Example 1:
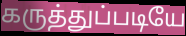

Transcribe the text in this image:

கருத்துப்படியே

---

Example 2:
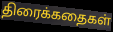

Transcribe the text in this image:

திரைக்கதைகள்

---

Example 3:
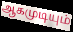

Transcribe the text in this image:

ஆகமுடியும்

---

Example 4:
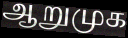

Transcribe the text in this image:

ஆறுமுக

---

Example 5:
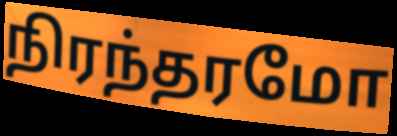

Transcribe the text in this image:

நிரந்தரமோ